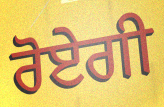
ਰੋਏਗੀ